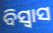
ବିସ୍ବାସ